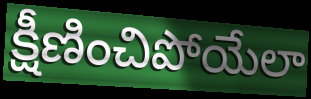
క్షీణించిపోయేలా